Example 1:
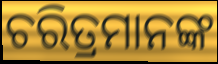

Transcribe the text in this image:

ଚରିତ୍ରମାନଙ୍କ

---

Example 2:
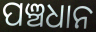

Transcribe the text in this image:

ପଞ୍ଚଧାନ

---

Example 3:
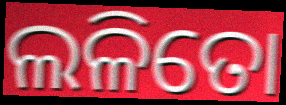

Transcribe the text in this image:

ଲଳିତୋ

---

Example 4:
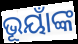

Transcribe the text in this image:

ଭୂୟାଁଙ୍କ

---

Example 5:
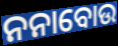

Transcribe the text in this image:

ନନାବୋଉ